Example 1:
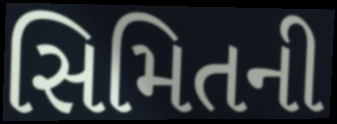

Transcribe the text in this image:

સિમિતની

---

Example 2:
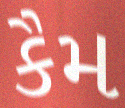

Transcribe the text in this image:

કૈમ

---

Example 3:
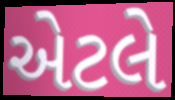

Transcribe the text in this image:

એટલે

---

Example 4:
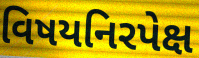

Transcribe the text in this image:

વિષયનિરપેક્ષ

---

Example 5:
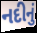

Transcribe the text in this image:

નદીનું